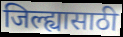
जिल्ह्यासाठी